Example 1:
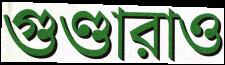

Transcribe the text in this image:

গুণ্ডারাও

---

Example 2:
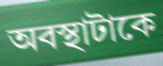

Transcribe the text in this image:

অবস্থাটাকে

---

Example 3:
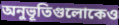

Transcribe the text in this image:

অনুভূতিগুলোকেও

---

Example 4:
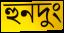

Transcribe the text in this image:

হুনদুং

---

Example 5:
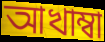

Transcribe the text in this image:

আখাম্বা